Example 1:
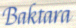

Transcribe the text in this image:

Baktara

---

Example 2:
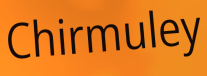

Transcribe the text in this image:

Chirmuley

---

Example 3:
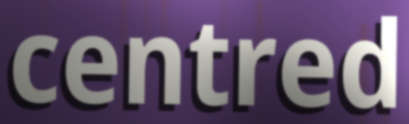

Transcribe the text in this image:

centred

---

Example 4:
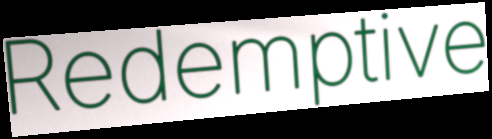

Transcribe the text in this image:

Redemptive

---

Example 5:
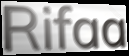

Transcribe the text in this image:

Rifaa